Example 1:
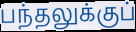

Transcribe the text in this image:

பந்தலுக்குப்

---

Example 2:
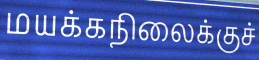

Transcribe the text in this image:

மயக்கநிலைக்குச்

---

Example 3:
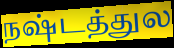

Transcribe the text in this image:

நஷ்டத்துல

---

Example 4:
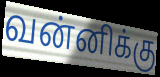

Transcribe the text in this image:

வன்னிக்கு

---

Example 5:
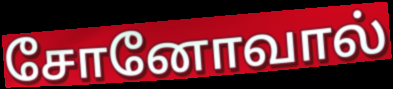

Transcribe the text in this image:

சோனோவால்